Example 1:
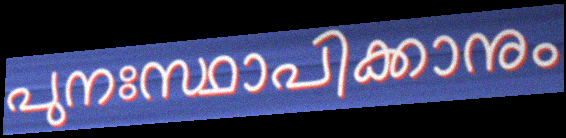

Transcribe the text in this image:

പുനഃസ്ഥാപിക്കാനും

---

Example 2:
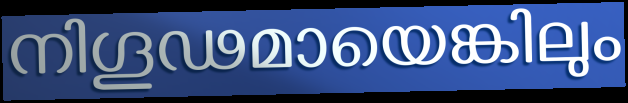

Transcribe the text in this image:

നിഗൂഢമായെങ്കിലും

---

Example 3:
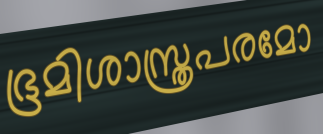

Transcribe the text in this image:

ഭൂമിശാസ്ത്രപരമോ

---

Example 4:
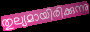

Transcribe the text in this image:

തുല്യമായിരിക്കുന്നു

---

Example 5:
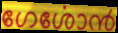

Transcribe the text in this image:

ഗേൎശോൻ